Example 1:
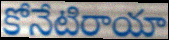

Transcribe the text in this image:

కోనేటిరాయా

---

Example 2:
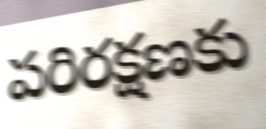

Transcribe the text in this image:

పరిరక్షణకు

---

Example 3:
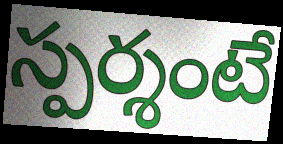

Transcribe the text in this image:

స్పర్శంటే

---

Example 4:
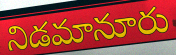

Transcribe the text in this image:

నిడమానూరు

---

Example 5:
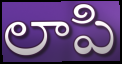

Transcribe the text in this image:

లాపి